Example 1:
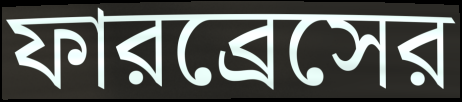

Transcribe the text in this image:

ফারব্রেসের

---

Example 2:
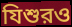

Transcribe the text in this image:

যিশুরও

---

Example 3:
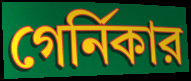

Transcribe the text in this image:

গের্নিকার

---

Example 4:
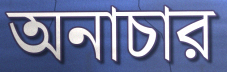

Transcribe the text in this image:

অনাচার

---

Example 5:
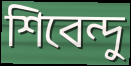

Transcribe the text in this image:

শিবেন্দু